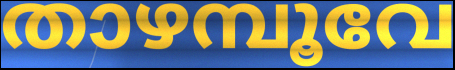
താഴമ്പൂവേ